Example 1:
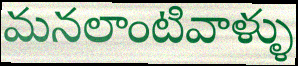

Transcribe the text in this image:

మనలాంటివాళ్ళు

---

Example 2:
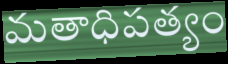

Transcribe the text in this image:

మతాధిపత్యం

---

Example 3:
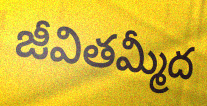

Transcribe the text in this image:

జీవితమ్మీద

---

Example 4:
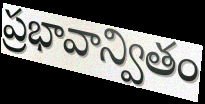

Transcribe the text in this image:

ప్రభావాన్వితం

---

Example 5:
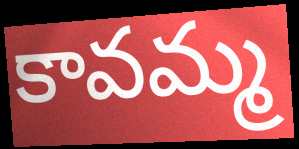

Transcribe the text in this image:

కావమ్మ